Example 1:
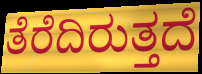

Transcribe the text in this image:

ತೆರೆದಿರುತ್ತದೆ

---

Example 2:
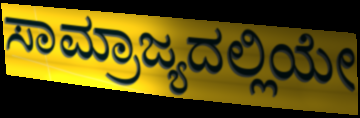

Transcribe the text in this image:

ಸಾಮ್ರಾಜ್ಯದಲ್ಲಿಯೇ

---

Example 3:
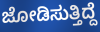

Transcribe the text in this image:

ಜೋಡಿಸುತ್ತಿದ್ದೆ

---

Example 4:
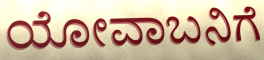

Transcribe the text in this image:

ಯೋವಾಬನಿಗೆ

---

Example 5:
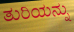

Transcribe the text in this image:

ತುರಿಯನ್ನು